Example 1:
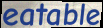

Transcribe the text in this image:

eatable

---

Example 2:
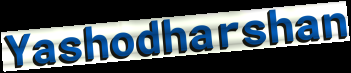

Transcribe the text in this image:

Yashodharshan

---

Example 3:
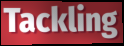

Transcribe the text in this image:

Tackling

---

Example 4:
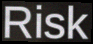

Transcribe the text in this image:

Risk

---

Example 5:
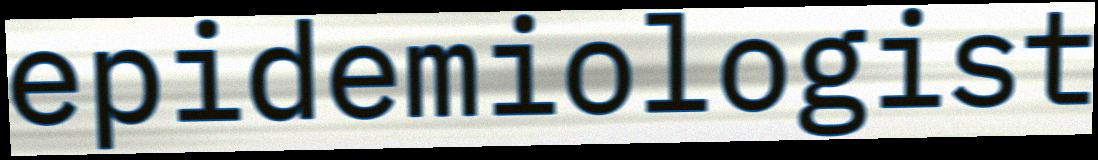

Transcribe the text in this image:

epidemiologist